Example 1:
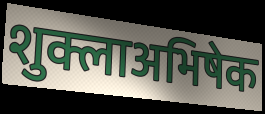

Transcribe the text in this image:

शुक्लाअभिषेक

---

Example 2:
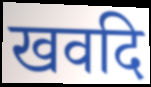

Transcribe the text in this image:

खवदि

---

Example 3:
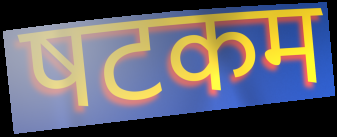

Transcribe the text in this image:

षटकम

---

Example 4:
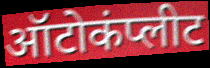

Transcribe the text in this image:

ऑटोकंप्लीट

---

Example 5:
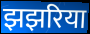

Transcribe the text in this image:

झझरिया